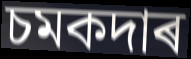
চমকদাৰ